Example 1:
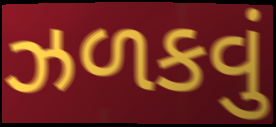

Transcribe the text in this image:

ઝળકવું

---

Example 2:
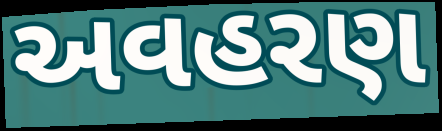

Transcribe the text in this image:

અવહરણ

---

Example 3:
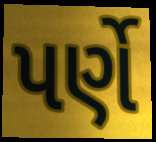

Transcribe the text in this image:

પર્ણે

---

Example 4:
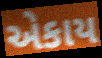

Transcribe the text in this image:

એકાય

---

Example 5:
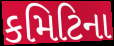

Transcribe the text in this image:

કમિટિના